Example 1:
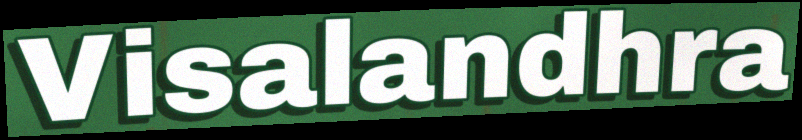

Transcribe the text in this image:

Visalandhra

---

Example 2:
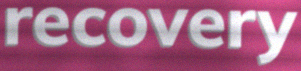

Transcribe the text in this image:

recovery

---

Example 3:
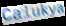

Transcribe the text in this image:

Calukya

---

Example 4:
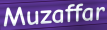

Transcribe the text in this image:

Muzaffar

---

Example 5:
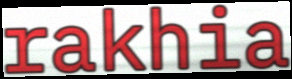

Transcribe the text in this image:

rakhia